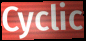
Cyclic